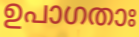
ഉപാഗതാഃ